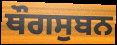
ਥੌਗਸੁਬਨ